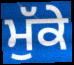
ਮੁੱਕੇ